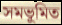
সমভূমিত